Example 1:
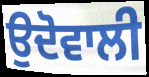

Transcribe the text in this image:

ਉਦੋਵਾਲੀ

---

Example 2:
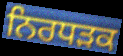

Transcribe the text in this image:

ਨਿਰਧੜਕ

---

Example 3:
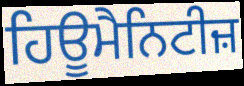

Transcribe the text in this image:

ਹਿਊਮੈਨਿਟੀਜ਼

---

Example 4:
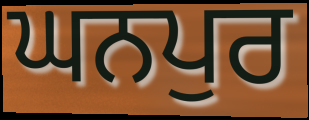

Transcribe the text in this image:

ਘਨਪੁਰ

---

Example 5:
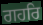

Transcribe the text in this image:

ਗਹਰਿ